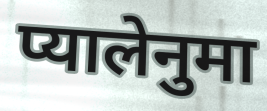
प्यालेनुमा